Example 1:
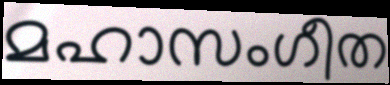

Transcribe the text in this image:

മഹാസംഗീത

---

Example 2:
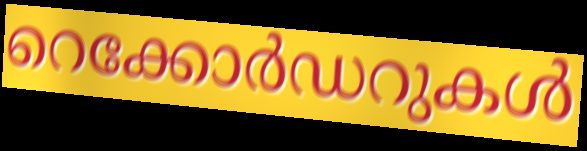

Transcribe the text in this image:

റെക്കോർഡറുകൾ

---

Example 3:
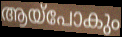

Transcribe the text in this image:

ആയ്പോകും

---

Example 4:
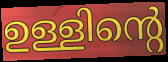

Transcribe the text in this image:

ഉള്ളിന്റെ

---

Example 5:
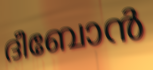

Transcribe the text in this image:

ദീബോൻ